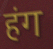
हंग